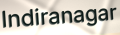
Indiranagar